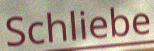
Schliebe